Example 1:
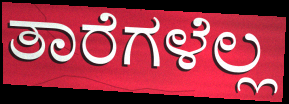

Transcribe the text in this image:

ತಾರೆಗಳೆಲ್ಲ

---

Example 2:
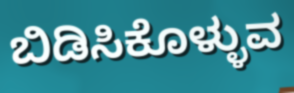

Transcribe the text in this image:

ಬಿಡಿಸಿಕೊಳ್ಳುವ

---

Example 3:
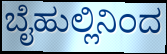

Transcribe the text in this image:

ಬೈಹುಲ್ಲಿನಿಂದ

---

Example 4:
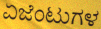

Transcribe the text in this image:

ಏಜೆಂಟುಗಳ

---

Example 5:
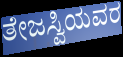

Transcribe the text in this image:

ತೇಜಸ್ವಿಯವರ